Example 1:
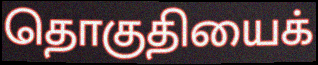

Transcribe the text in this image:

தொகுதியைக்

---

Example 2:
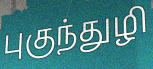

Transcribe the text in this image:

புகுந்துழி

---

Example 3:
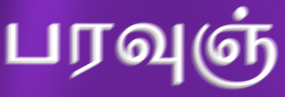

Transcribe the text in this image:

பரவுஞ்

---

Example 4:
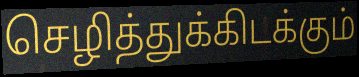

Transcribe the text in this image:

செழித்துக்கிடக்கும்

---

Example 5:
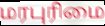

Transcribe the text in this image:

மரபுரிமை